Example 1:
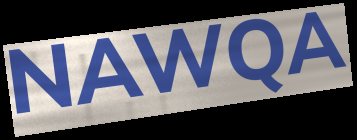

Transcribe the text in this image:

NAWQA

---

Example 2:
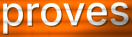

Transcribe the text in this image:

proves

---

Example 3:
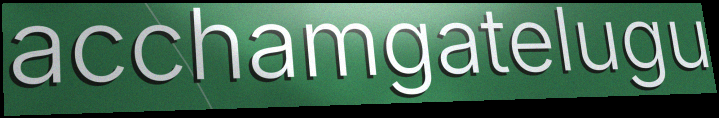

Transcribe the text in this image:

acchamgatelugu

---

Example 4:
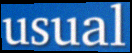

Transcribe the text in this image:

usual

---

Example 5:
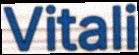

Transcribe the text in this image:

Vitali